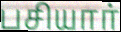
பசியார்